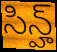
సిన్హ్